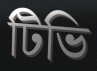
টিভি